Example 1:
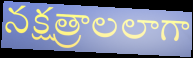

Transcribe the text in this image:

నక్షత్రాలలాగా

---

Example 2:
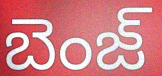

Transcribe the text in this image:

బెంజ్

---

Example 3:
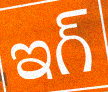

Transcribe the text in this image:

ఇగ్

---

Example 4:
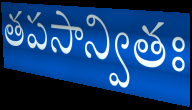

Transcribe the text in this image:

తపసాన్వితః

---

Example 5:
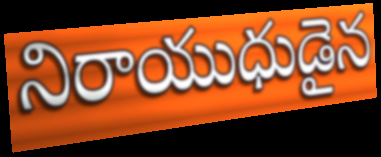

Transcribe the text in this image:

నిరాయుధుడైన